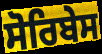
ਸੋਰਿਬੇਸ